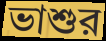
ভাশুর